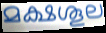
മക്ഷശൂല